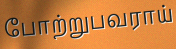
போற்றுபவராய்